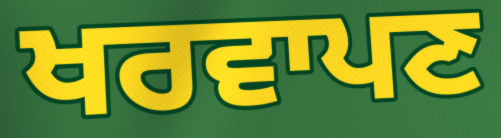
ਖਰਵਾਪਣ